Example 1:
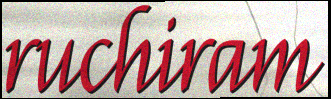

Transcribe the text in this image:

ruchiram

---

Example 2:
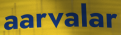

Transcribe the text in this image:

aarvalar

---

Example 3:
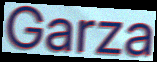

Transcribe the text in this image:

Garza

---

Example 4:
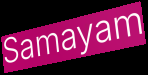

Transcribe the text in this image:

Samayam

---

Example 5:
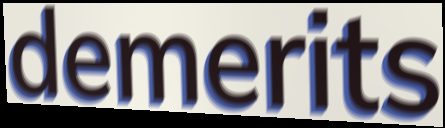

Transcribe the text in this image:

demerits